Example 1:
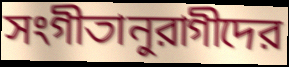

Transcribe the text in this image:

সংগীতানুরাগীদের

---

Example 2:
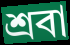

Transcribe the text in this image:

শ্রবা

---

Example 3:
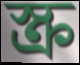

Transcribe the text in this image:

স্ক্র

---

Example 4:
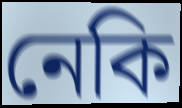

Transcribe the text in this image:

নেকি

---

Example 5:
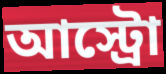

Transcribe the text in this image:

আস্ট্রো